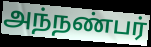
அந்நண்பர்